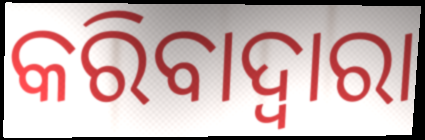
କରିବାଦ୍ବାରା